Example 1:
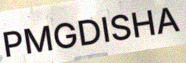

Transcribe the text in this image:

PMGDISHA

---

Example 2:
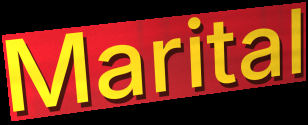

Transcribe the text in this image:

Marital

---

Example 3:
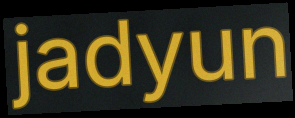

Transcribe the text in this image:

jadyun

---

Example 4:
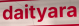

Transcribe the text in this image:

daityara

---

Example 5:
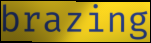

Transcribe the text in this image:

brazing